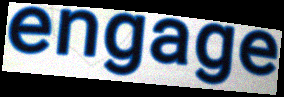
engage